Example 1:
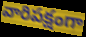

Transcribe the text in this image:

వారిపక్షంగా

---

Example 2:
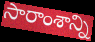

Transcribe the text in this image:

సారాంశాన్ని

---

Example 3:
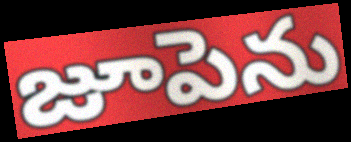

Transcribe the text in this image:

జూపెను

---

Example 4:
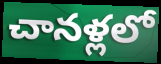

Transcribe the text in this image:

చానళ్లలో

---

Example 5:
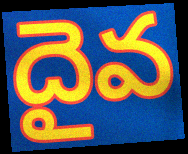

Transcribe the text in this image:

దైవ